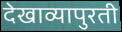
देखाव्यापुरती